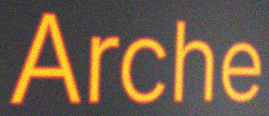
Arche